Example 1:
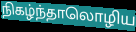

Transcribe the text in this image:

நிகழ்ந்தாலொழிய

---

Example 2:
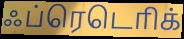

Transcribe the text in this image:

ஃப்ரெடெரிக்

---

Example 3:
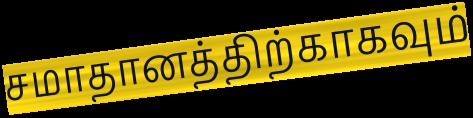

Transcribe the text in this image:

சமாதானத்திற்காகவும்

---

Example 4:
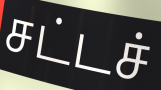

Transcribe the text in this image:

சட்டச்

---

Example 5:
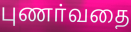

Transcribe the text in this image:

புணர்வதை